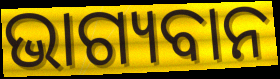
ଭାଗ୍ୟବାନ